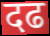
दढ